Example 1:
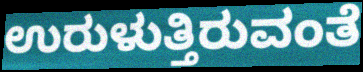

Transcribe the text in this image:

ಉರುಳುತ್ತಿರುವಂತೆ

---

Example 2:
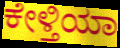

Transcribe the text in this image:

ಕೇಳ್ತಿಯಾ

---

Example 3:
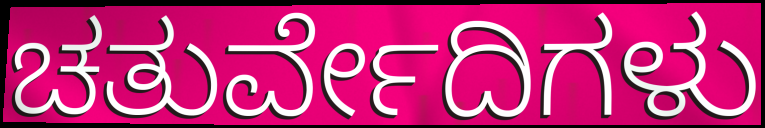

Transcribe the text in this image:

ಚತುರ್ವೇದಿಗಳು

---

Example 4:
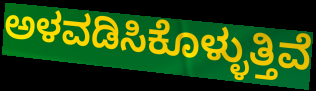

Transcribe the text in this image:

ಅಳವಡಿಸಿಕೊಳ್ಳುತ್ತಿವೆ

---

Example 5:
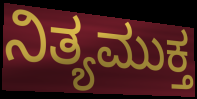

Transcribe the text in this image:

ನಿತ್ಯಮುಕ್ತ